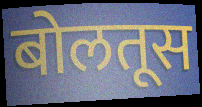
बोलतूस